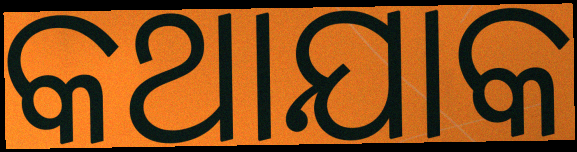
କଥାଯାକ